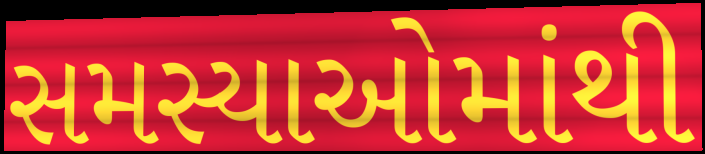
સમસ્યાઓમાંથી